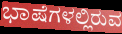
ಭಾಷೆಗಳಲ್ಲಿರುವ